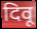
दिवू